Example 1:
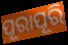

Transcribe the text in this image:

ପୂରାପୂରି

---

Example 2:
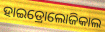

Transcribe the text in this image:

ହାଇଡ୍ରୋଲୋଜିକାଲ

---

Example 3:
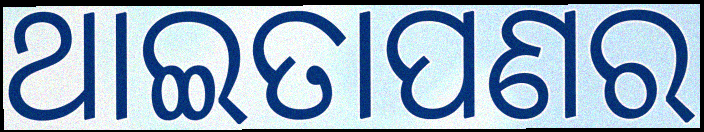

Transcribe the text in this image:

ଥାଇତାପଣର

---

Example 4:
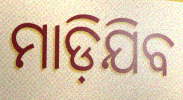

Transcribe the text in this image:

ମାଡ଼ିଯିବ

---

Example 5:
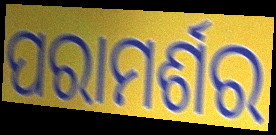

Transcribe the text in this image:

ପରାମର୍ଶର